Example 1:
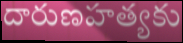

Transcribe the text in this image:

దారుణహత్యకు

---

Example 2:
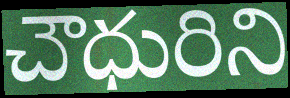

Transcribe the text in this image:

చౌధురిని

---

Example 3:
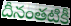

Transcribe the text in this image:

దీనంతటికీ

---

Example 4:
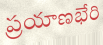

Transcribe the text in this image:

ప్రయాణభేరి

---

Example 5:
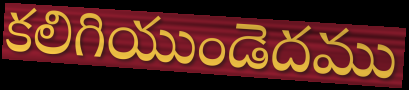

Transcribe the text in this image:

కలిగియుండెదము